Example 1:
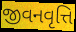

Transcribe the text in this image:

જીવનવૃત્તિ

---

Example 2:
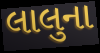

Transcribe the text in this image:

લાલુના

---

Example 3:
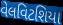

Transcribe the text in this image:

વેલવિટશિયા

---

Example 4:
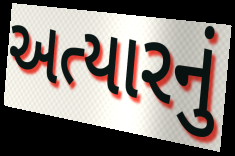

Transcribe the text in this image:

અત્યારનું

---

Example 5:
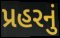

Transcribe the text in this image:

પ્રહરનું